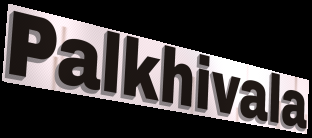
Palkhivala